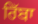
ਰਿੱਬਾ